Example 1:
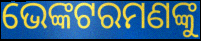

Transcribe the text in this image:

ଭେଙ୍କଟରମଣଙ୍କୁ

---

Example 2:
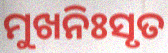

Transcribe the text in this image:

ମୁଖନିଃସୃତ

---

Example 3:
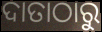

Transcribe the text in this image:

ଦାତାଠାରୁ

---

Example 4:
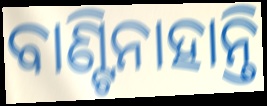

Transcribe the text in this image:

ବାଣ୍ଟିନାହାନ୍ତି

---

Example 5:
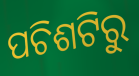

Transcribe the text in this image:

ପଚିଶଟିରୁ